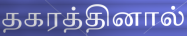
தகரத்தினால்